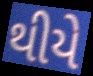
થીયે